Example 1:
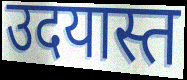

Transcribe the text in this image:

उदयास्त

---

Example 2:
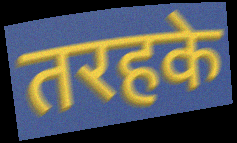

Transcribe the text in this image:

तरहके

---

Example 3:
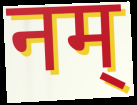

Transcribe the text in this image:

नम्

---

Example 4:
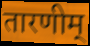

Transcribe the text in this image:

तारणीम्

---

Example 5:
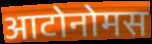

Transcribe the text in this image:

आटोनोमस